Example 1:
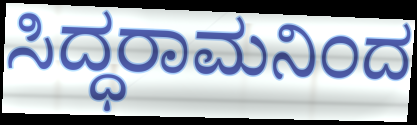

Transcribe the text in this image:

ಸಿದ್ಧರಾಮನಿಂದ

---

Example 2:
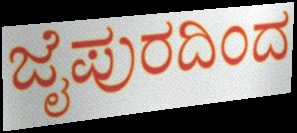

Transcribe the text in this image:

ಜೈಪುರದಿಂದ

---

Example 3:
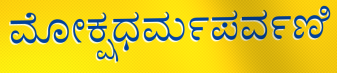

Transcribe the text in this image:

ಮೋಕ್ಷಧರ್ಮಪರ್ವಣಿ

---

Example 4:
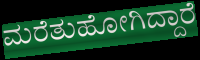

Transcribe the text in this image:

ಮರೆತುಹೋಗಿದ್ದಾರೆ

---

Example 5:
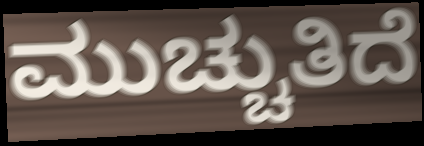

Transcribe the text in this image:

ಮುಚ್ಚುತಿದೆ